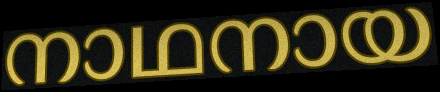
നാഥനായ